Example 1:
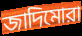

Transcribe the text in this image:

জাদিমোরা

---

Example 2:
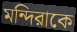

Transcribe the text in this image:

মন্দিরাকে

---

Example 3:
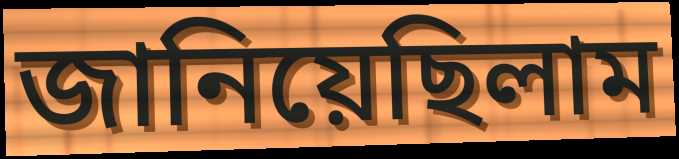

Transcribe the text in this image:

জানিয়েছিলাম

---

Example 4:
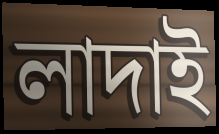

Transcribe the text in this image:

লাদাই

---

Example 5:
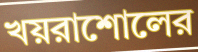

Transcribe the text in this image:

খয়রাশোলের